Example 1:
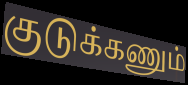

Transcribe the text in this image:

குடுக்கணும்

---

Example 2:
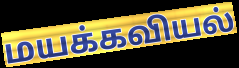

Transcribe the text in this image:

மயக்கவியல்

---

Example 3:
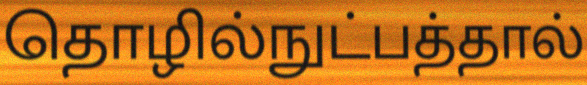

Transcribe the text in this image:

தொழில்நுட்பத்தால்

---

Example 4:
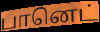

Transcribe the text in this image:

பானெட்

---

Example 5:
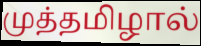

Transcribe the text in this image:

முத்தமிழால்